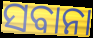
ସବାନା